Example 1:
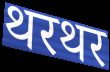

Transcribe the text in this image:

थरथर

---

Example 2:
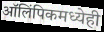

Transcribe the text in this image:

ऑलिंपिकमध्येही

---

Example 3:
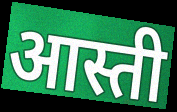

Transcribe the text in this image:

आस्ती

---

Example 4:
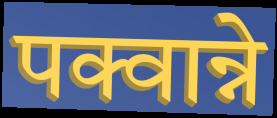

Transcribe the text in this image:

पक्वान्ने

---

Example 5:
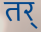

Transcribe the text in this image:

तर्